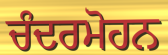
ਚੰਦਰਮੋਹਨ